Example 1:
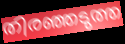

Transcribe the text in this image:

തിരഞ്ഞടുത്ത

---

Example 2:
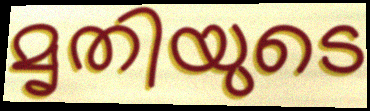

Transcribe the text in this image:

മൃതിയുടെ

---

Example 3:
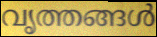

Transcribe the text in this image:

വൃത്തങ്ങൾ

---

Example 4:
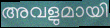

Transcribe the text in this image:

അവളുമായി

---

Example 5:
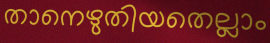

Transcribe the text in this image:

താനെഴുതിയതെല്ലാം